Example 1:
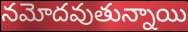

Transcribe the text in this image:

నమోదవుతున్నాయి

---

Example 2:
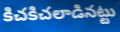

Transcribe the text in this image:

కిచకిచలాడినట్టు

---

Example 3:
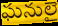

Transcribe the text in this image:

ఘనులై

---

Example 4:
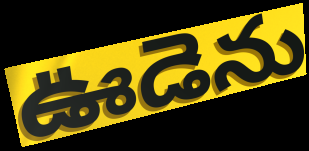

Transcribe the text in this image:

ఊడెను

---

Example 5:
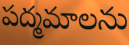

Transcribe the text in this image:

పద్మమాలను